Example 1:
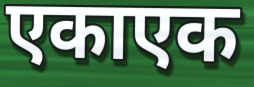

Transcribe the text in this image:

एकाएक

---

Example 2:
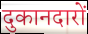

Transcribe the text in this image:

दुकानदारों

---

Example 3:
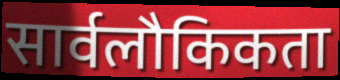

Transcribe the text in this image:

सार्वलौकिकता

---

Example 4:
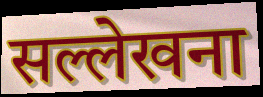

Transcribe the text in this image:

सल्लेखना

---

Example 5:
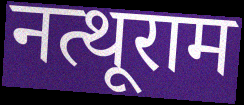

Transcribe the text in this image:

नत्थूराम